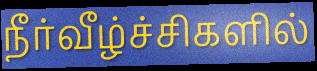
நீர்வீழ்ச்சிகளில்